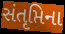
સંતૃપ્તિના